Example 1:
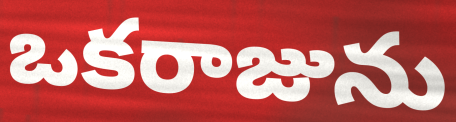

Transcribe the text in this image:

ఒకరాజును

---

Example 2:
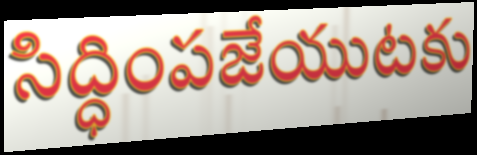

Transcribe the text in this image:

సిద్ధింపజేయుటకు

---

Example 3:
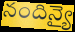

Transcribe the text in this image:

నందిన్యై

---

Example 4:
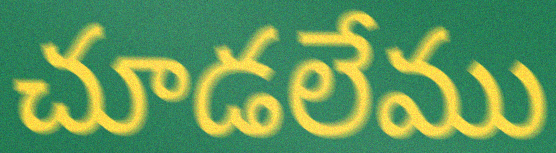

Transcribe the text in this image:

చూడలేము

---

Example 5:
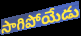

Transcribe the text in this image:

సాగిపోయేడు